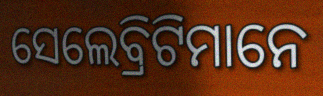
ସେଲେବ୍ରିଟିମାନେ